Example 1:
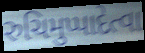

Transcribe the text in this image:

રુચિમુપ્પાદેત્વા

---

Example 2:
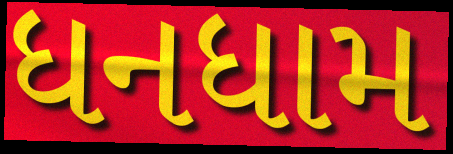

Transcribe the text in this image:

ધનધામ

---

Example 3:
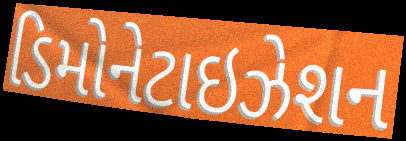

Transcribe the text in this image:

ડિમોનેટાઇઝેશન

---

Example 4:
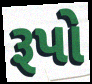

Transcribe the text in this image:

રૂપો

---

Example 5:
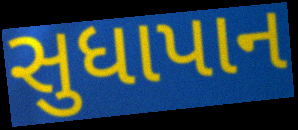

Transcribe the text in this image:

સુધાપાન